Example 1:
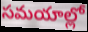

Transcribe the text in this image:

సమయాల్లో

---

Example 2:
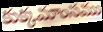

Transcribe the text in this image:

కుక్కమాంసము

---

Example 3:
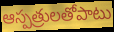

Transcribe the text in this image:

ఆస్పత్రులతోపాటు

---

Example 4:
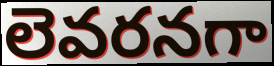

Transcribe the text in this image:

లెవరనగా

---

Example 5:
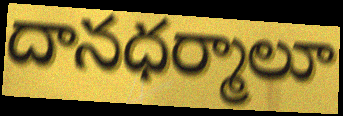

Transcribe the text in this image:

దానధర్మాలూ